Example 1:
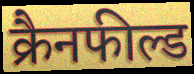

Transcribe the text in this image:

क्रैनफील्ड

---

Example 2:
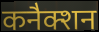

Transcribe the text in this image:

कनैक्शन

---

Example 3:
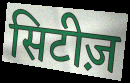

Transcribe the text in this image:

सिटीज़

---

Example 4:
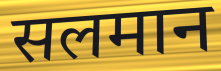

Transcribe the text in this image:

सलमान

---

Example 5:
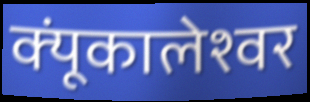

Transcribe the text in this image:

क्यूंकालेश्वर